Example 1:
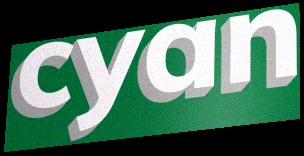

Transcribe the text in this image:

cyan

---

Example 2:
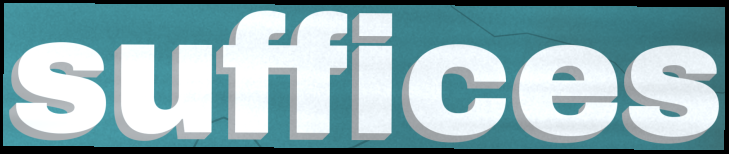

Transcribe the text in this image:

suffices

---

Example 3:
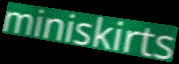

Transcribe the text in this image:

miniskirts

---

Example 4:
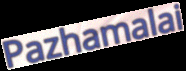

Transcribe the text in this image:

Pazhamalai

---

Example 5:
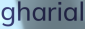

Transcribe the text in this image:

gharial